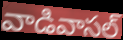
వాడివాసల్